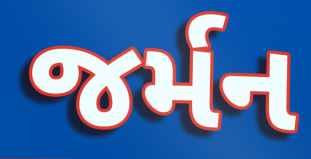
જર્મન